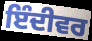
ਇੰਦੀਵਰ